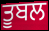
ਤੂਬਲ